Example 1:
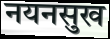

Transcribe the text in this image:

नयनसुख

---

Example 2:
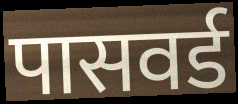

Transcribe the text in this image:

पासवर्ड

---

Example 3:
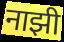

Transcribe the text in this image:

नाझी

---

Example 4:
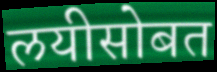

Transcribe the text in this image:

लयीसोबत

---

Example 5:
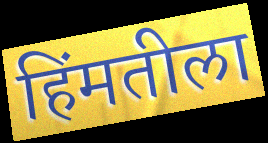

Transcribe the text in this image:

हिंमतीला